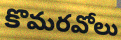
కొమరవోలు